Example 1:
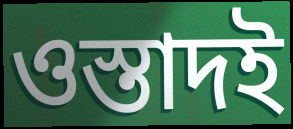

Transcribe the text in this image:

ওস্তাদই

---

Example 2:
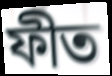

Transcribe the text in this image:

ফীত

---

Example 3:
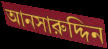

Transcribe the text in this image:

আনসারুদ্দিন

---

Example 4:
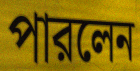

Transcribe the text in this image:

পারলেন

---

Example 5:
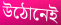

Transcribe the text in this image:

উঠোনেই